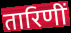
तारिणीं